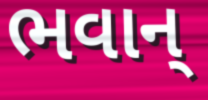
ભવાન્